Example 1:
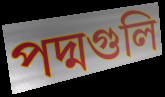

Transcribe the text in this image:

পদ্মগুলি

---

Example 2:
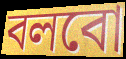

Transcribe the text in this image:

বলবো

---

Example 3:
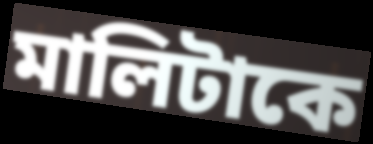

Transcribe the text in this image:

মালিটাকে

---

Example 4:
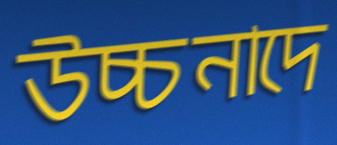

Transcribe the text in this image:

উচ্চনাদে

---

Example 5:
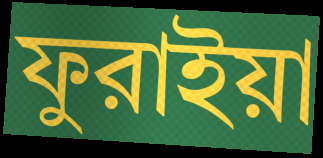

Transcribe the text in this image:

ফুরাইয়া